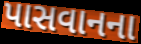
પાસવાનના